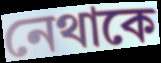
নেথাকে